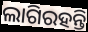
ଲାଗିରହନ୍ତି